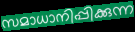
സമാധാനിപ്പിക്കുന്ന